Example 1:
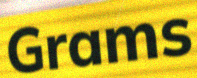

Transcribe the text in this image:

Grams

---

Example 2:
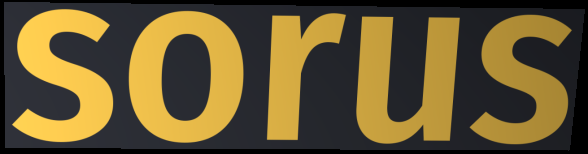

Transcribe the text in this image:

sorus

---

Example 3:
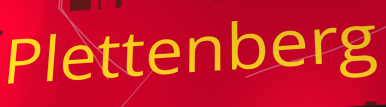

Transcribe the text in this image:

Plettenberg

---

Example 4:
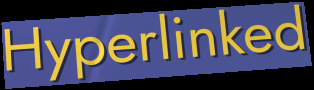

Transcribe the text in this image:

Hyperlinked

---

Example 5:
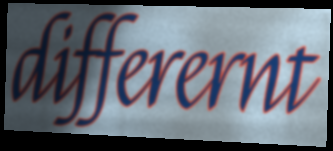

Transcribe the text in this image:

differernt